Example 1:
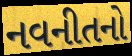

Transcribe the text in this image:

નવનીતનો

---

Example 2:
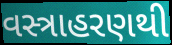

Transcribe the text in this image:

વસ્ત્રાહરણથી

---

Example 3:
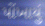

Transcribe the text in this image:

પોંખાયું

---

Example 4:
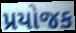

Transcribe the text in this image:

પ્રયોજક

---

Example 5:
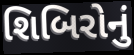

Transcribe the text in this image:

શિબિરોનું